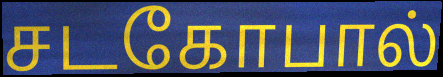
சடகோபால்